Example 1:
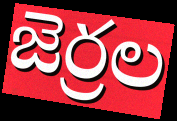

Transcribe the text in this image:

జెర్రల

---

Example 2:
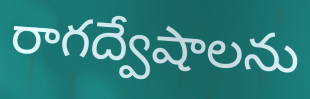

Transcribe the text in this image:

రాగద్వేషాలను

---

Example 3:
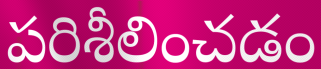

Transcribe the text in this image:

పరిశీలించడం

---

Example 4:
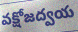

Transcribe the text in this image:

వక్షోజద్వయ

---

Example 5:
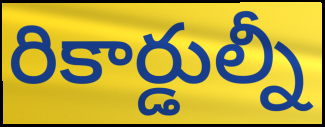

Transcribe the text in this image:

రికార్డుల్నీ